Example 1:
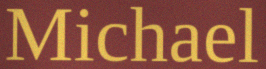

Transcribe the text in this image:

Michael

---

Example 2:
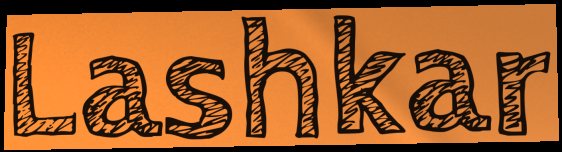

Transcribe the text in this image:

Lashkar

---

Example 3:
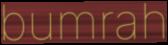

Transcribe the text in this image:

bumrah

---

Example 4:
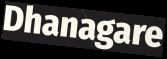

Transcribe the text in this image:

Dhanagare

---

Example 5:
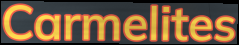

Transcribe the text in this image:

Carmelites